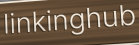
linkinghub